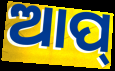
ଆପ୍